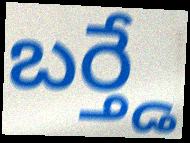
బర్త్డే